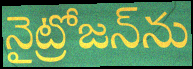
నైట్రోజన్‌ను